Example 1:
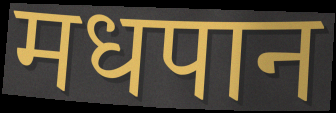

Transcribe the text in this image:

मधपान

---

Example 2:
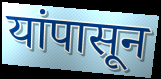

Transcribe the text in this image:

यांपासून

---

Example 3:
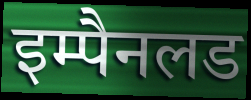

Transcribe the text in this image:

इम्पैनलड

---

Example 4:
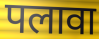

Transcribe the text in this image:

पलावा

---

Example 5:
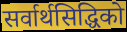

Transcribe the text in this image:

सर्वार्थसिद्धिको